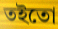
তইতো